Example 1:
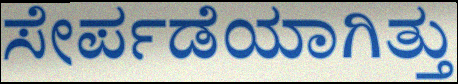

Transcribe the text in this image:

ಸೇರ್ಪಡೆಯಾಗಿತ್ತು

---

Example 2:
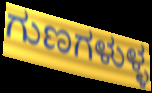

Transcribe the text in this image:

ಗುಣಗಳುಳ್ಳ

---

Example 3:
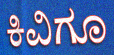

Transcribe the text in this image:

ಕಿವಿಗೂ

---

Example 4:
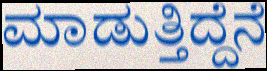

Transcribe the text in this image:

ಮಾಡುತ್ತಿದ್ದೆನೆ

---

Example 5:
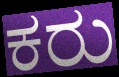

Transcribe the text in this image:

ಕರು